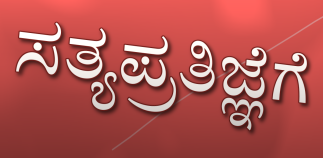
ಸತ್ಯಪ್ರತಿಜ್ಞೆಗೆ